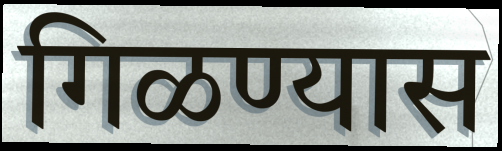
गिळण्यास